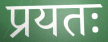
प्रयतः